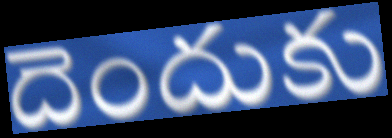
దెందుకు